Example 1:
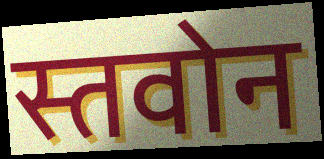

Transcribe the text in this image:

स्तवोन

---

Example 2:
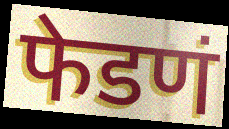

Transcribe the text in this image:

फेडणं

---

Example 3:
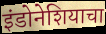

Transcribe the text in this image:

इंडोनेशियाचा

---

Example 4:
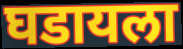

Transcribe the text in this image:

घडायला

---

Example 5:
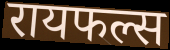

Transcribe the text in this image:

रायफल्स